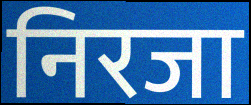
निरजा